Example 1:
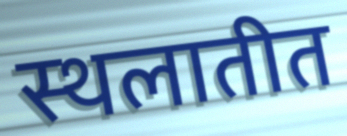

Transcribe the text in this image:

स्थलातीत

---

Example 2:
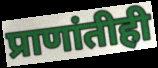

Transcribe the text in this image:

प्राणांतीही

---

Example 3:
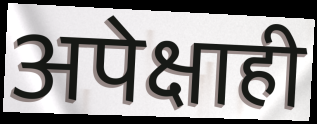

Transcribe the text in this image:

अपेक्षाही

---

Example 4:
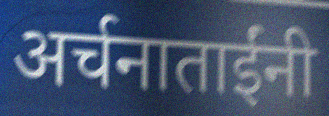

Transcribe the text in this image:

अर्चनाताईंनी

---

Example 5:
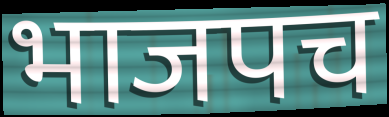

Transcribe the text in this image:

भाजपच